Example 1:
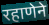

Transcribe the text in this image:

रहाणेने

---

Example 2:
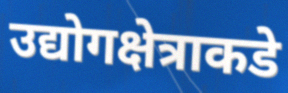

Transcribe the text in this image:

उद्योगक्षेत्राकडे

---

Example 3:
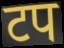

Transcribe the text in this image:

टप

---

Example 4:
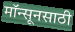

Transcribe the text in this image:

मॉन्सूनसाठी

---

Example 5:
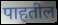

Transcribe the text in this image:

पाहतील